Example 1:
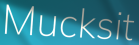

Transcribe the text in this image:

Mucksit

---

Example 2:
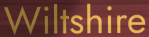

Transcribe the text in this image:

Wiltshire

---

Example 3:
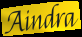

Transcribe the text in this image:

Aindra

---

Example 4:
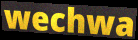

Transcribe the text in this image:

wechwa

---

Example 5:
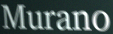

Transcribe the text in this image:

Murano